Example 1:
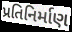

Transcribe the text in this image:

પ્રતિનિર્માણ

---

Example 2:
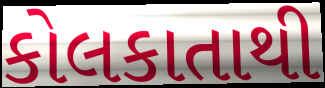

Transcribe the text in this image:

કોલકાતાથી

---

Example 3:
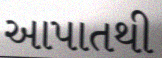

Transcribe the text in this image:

આપાતથી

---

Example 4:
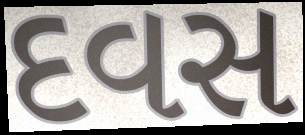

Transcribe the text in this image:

દવસ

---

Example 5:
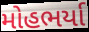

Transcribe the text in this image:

મોહભર્યા